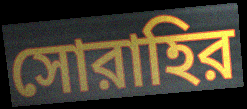
সোরাহির